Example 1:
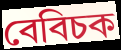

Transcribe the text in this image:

বেবিচক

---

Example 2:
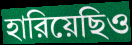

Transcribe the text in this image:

হারিয়েছিও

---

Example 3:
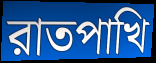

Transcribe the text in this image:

রাতপাখি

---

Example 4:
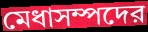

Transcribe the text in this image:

মেধাসম্পদের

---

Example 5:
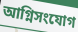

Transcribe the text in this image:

আগ্নিসংযোগ